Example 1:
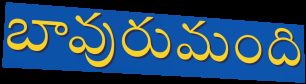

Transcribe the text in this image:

బావురుమంది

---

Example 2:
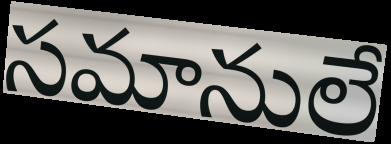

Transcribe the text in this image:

సమానులే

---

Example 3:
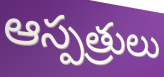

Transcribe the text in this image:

ఆస్పత్రులు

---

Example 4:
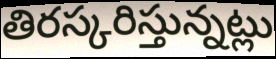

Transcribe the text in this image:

తిరస్కరిస్తున్నట్లు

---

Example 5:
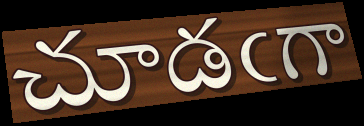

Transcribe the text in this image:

చూడఁగా